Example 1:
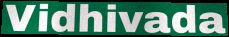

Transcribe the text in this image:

Vidhivada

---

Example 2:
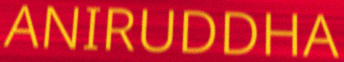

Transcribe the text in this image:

ANIRUDDHA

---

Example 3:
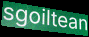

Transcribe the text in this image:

sgoiltean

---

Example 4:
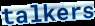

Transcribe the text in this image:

talkers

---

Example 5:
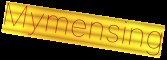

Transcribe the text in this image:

Mymensing